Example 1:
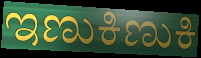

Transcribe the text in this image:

ಇಣುಕಿಣುಕಿ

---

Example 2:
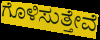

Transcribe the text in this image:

ಗೊಳಿಸುತ್ತೇವೆ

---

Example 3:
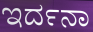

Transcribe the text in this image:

ಇರ್ದನಾ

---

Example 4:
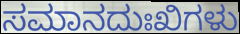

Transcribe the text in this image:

ಸಮಾನದುಃಖಿಗಳು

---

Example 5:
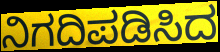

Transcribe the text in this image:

ನಿಗದಿಪಡಿಸಿದ